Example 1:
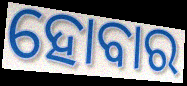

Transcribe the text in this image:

ହୋବାର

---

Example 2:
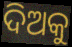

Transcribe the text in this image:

ଦିଅକୁ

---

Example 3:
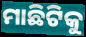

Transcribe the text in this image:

ମାଛିଟିକୁ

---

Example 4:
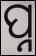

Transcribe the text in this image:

ପ୍ନ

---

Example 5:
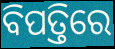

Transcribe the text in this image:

ବିପତ୍ତିରେ